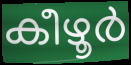
കീഴൂർ